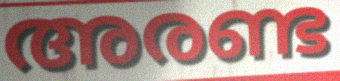
അരണ്ട